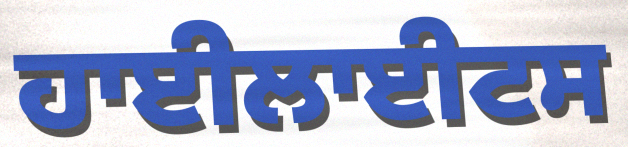
ਹਾਈਲਾਈਟਸ